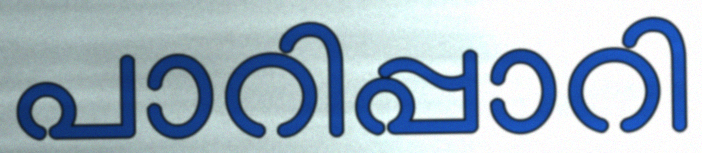
പാറിപ്പാറി